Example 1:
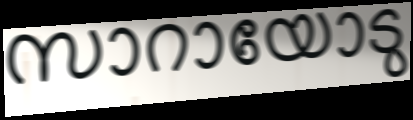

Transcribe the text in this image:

സാറായോടു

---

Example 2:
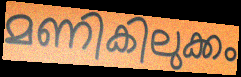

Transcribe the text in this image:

മണികിലുക്കം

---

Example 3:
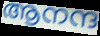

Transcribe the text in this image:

ആനന്ദ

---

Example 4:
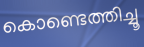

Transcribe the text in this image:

കൊണ്ടെത്തിച്ചൂ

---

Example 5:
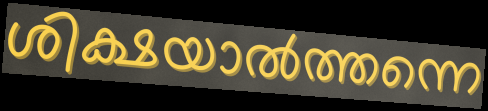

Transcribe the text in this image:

ശിക്ഷയാൽത്തന്നെ